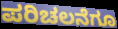
ಪರಿಚಲನೆಗೂ